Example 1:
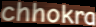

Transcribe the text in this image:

chhokra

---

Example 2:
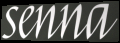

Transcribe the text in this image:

senna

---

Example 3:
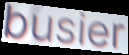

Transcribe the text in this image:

busier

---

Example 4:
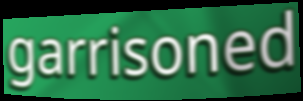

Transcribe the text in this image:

garrisoned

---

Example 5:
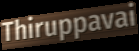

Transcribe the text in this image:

Thiruppavai